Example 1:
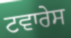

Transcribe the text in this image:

ਟਵਾਰੇਸ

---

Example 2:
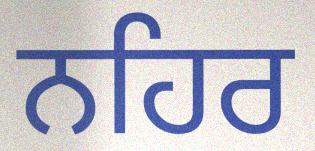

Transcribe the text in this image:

ਨਹਿਰ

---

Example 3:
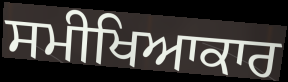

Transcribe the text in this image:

ਸਮੀਖਿਆਕਾਰ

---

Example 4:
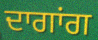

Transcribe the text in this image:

ਦਾਗਾਂਗ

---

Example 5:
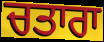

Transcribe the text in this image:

ਚਤਾਰਾ